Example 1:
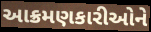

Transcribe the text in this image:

આક્રમણકારીઓને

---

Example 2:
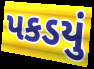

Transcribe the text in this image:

પકડયું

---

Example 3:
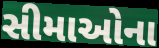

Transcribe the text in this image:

સીમાઓના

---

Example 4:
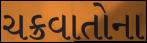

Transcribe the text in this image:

ચક્રવાતોના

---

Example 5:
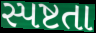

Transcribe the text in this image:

સ્પષ્ટતા